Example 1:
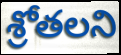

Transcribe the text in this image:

శ్రోతలని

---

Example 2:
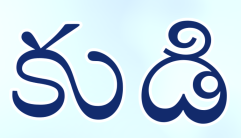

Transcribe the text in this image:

కుడి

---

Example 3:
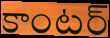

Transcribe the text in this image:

కాంటర్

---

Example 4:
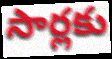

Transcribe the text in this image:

సార్లకు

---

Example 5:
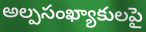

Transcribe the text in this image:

అల్పసంఖ్యాకులపై